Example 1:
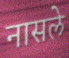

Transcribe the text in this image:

नासले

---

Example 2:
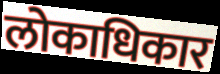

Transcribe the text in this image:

लोकाधिकार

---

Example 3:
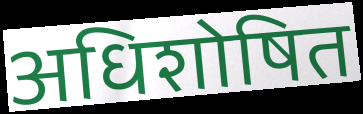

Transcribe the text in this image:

अधिशोषित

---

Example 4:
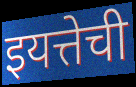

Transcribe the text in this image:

इयत्तेची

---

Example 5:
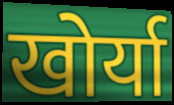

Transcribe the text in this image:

खोर्या